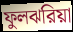
ফুলঝরিয়া